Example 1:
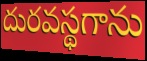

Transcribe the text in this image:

దురవస్థగాను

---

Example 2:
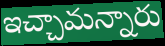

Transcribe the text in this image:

ఇచ్చామన్నారు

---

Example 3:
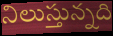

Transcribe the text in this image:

నిలుస్తున్నది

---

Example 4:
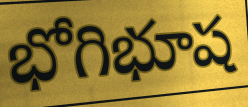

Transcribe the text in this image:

భోగిభూష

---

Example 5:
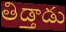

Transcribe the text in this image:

తిడ్తాడు